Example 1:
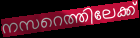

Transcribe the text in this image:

നസറെത്തിലേക്ക്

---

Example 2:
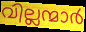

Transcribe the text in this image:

വില്ലന്മാർ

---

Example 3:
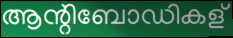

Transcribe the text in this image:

ആന്റിബോഡികള്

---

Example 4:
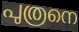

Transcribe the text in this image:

പുത്രനെ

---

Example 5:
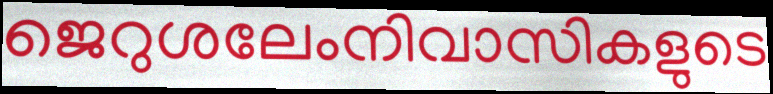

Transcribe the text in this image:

ജെറുശലേംനിവാസികളുടെ